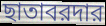
ছাতাবরদার